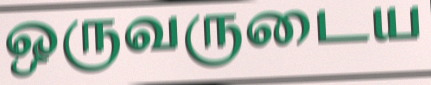
ஒருவருடைய